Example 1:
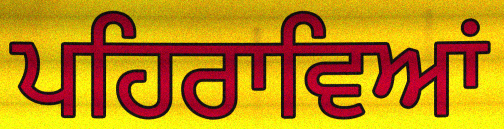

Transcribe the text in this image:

ਪਹਿਰਾਵਿਆਂ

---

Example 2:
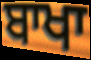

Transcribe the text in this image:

ਬਾਖਾ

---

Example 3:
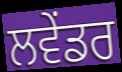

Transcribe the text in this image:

ਲਵੇਂਡਰ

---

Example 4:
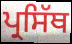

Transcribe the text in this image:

ਪ੍ਰਸਿੱਥ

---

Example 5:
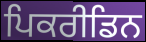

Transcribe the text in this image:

ਪਿਕਰੀਡਿਨ